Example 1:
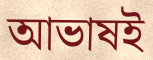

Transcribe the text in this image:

আভাষই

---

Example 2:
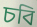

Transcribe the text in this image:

চবি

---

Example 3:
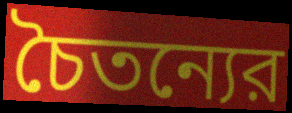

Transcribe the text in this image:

চৈতন্যের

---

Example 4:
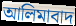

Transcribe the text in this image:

আলিমাবাদ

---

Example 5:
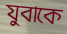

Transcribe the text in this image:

যুবাকে